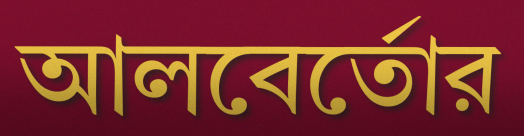
আলবের্তোর